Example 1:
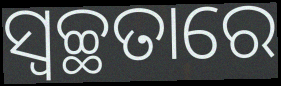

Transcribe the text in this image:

ସ୍ବଚ୍ଛତାରେ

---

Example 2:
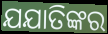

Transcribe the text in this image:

ଯଯାତିଙ୍କର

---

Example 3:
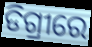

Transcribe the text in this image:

ଡିଗ୍ରୀରେ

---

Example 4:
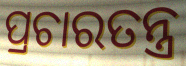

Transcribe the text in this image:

ପ୍ରଚାରତନ୍ତ୍ର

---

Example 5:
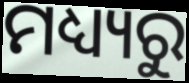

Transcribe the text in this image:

ମଧ୍ୟ୍ୟରୁ